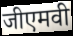
जीएमवी